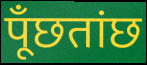
पूँछतांछ